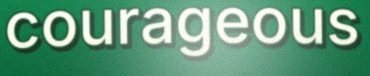
courageous